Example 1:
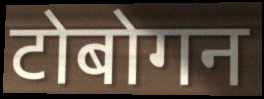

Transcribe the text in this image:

टोबोगन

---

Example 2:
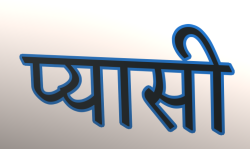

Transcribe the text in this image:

प्यासी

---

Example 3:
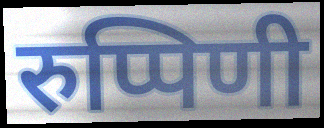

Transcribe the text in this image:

रुप्पिणी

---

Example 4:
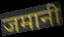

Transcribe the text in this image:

जमानी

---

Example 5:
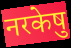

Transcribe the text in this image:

नरकेषु